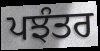
ਪਝੰਤਰ